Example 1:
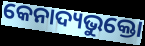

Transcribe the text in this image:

କେନାଦ୍ୟଭୁକ୍ତୋ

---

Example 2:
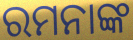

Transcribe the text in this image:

ରମନାଙ୍କ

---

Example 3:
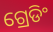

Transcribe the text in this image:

ଗ୍ରେଡିଂ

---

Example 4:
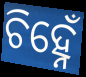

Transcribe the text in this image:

ଚିହ୍ନେଁ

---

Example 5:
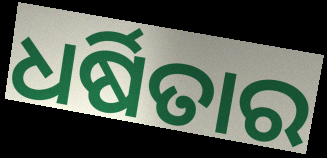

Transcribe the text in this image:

ଧର୍ଷିତାର